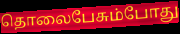
தொலைபேசும்போது